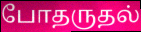
போதருதல்